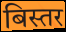
बिस्‍तर